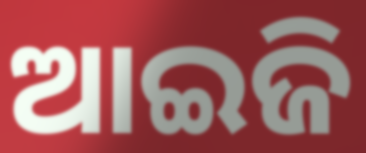
ଆଇଜି